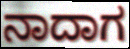
ನಾದಾಗ